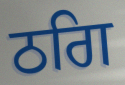
ਠਗਿ